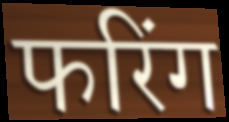
फरिंग